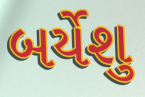
બર્યેશુ